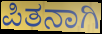
ಪಿತನಾಗಿ